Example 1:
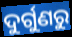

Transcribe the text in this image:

ଦୁର୍ଗୁଣରୁ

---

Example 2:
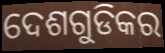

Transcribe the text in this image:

ଦେଶଗୁଡିକର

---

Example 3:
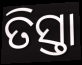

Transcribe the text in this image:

ତିସ୍ତା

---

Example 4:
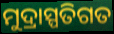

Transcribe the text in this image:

ମୁଦ୍ରାସ୍ପତିଗତ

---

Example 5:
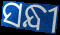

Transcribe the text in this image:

ସନ୍ଧୀ